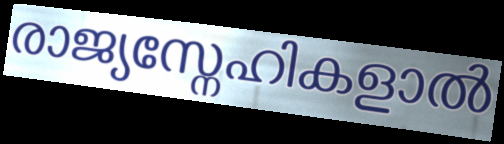
രാജ്യസ്നേഹികളാൽ